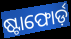
ଷ୍ଟାଫୋର୍ଡ଼